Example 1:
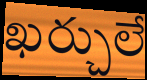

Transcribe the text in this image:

ఖర్చులే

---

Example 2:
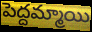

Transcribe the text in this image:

పెద్దమ్మాయి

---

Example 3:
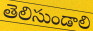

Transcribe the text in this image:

తెలిసుండాలి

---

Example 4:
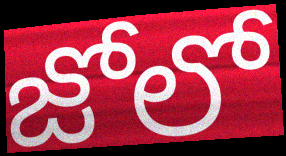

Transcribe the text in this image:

జోలో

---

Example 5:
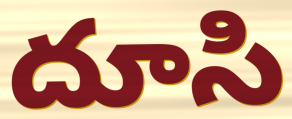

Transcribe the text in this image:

దూసి